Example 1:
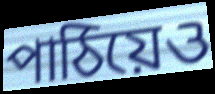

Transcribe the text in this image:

পাঠিয়েও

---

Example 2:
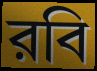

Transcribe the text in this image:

রবি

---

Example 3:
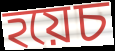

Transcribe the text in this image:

হয়েচ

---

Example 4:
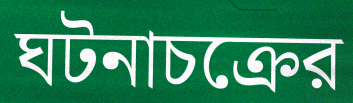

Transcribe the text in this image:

ঘটনাচক্রের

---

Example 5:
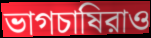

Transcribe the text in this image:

ভাগচাষিরাও